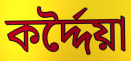
কৰ্দ্দৈয়া